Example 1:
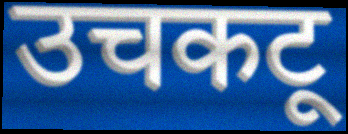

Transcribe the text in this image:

उचकटू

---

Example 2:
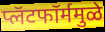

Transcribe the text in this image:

प्लॅटफॉर्ममुळे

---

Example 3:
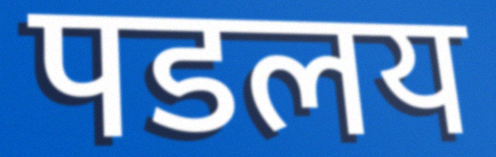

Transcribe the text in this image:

पडलय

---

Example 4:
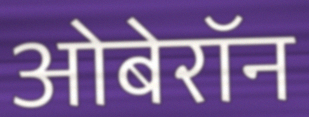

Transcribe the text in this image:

ओबेरॉन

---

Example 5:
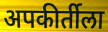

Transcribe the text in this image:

अपकीर्तीला